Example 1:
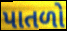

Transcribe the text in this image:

પાતળો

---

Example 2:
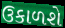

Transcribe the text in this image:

ઉકાળશે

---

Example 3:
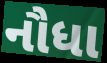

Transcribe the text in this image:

નૌધા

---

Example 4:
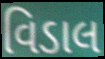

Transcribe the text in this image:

વિડાલ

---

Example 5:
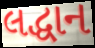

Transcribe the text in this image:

લદ્ધાન